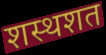
शस्थशत